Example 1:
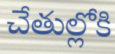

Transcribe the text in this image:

చేతుల్లోకి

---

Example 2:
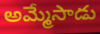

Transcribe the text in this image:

అమ్మేసాడు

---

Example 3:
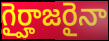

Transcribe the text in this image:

గైర్హాజరైనా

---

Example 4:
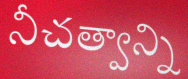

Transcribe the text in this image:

నీచత్వాన్ని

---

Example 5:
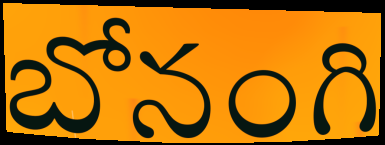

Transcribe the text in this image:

బోనంగి